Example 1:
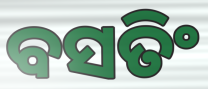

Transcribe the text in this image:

ବସତିଂ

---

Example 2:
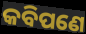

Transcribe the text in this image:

କବିପଣେ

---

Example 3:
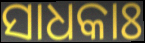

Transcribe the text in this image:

ସାଧକାଃ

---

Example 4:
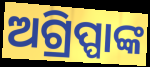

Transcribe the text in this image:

ଅଗ୍ରିପ୍ପାଙ୍କ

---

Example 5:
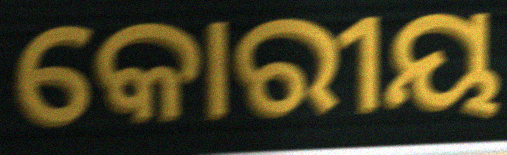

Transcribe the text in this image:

କୋରୀୟ